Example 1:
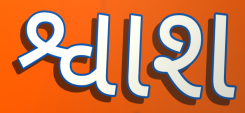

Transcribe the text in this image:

શ્વાશ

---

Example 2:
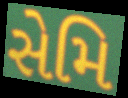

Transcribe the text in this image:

સેમિ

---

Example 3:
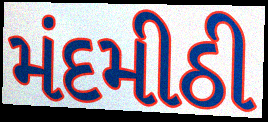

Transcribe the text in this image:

મંદમીઠી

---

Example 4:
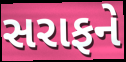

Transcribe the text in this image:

સરાફને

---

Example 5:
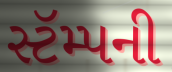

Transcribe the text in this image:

સ્ટૅમ્પની